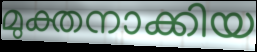
മുക്തനാക്കിയ